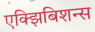
एक्झिबिशन्स